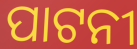
ପାଟନୀ